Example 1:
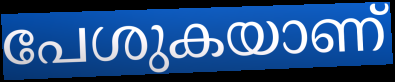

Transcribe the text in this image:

പേശുകയാണ്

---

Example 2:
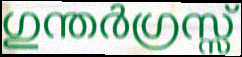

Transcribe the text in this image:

ഗുന്തർഗ്രസ്സ്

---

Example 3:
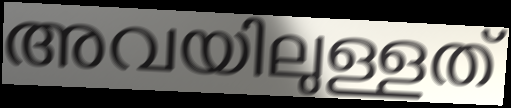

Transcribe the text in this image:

അവയിലുള്ളത്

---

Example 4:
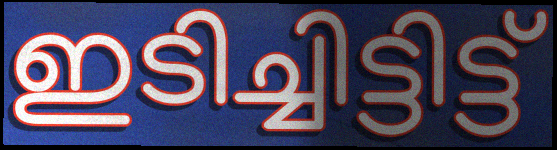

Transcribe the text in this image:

ഇടിച്ചിട്ടിട്ട്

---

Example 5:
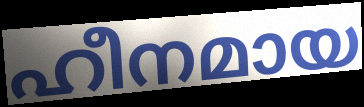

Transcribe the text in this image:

ഹീനമായ